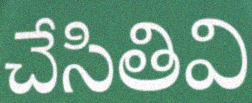
చేసితివి